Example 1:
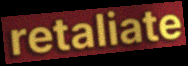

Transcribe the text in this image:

retaliate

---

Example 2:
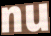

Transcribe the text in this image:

nu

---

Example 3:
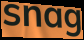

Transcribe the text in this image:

snag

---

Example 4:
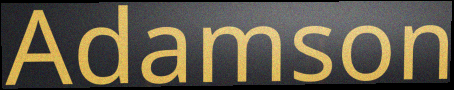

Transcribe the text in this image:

Adamson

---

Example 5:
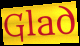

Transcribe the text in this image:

Glad